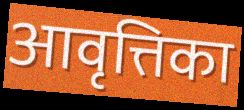
आवृत्तिका